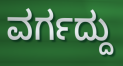
ವರ್ಗದ್ದು